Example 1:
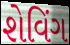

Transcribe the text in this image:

શેવિંગ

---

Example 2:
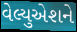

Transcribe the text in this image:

વેલ્યુએશને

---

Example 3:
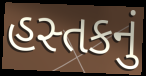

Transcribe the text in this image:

હસ્તકનું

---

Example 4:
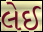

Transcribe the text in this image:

લેઈ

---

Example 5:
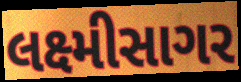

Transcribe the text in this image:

લક્ષ્મીસાગર